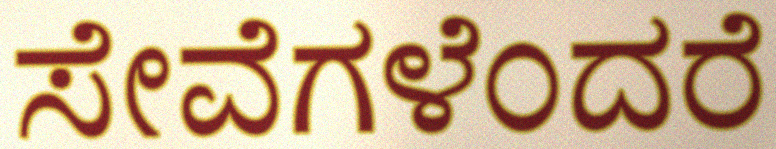
ಸೇವೆಗಳೆಂದರೆ